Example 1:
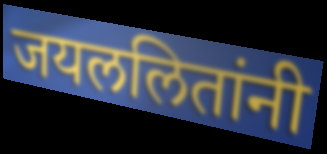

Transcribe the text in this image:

जयललितांनी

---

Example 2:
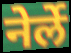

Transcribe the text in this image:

नेर्ले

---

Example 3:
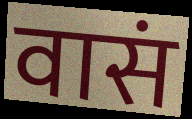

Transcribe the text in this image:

वासं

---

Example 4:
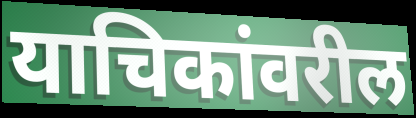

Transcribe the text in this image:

याचिकांवरील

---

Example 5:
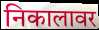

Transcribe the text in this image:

निकालावर